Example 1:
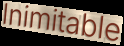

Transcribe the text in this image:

Inimitable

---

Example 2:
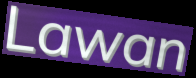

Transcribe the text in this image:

Lawan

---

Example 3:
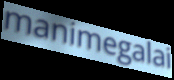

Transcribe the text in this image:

manimegalai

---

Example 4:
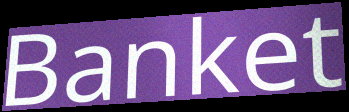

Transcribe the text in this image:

Banket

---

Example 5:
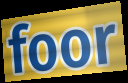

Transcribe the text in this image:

foor